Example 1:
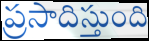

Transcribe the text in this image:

ప్రసాదిస్తుంది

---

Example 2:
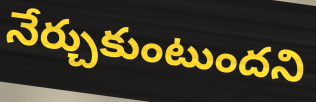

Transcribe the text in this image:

నేర్చుకుంటుందని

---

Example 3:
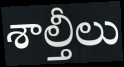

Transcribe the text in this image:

శాల్తీలు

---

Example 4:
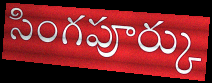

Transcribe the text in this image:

సింగపూర్కు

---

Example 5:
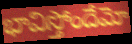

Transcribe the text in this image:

భావిస్తోందేమో